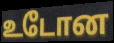
உடோன